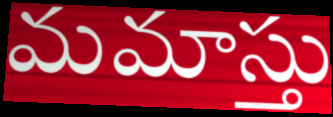
మమాస్తు